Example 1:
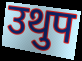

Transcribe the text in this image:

उथुप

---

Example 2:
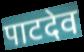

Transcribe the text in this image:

पाटदेव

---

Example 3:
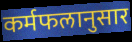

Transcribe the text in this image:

कर्मफलानुसार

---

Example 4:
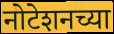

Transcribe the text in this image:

नोटेशनच्या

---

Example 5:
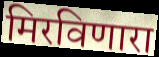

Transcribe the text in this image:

मिरविणारा